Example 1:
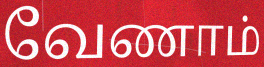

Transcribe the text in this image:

வேணாம்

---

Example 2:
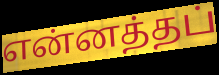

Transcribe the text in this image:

என்னத்தப்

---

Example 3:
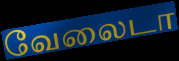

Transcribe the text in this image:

வேலைடா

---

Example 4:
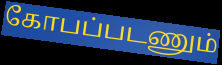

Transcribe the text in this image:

கோபப்படணும்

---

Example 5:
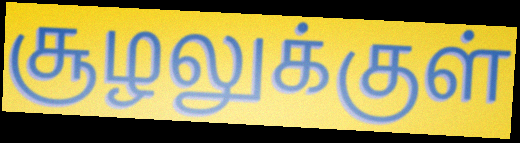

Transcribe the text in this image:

சூழலுக்குள்